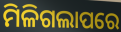
ମିଳିଗଲାପରେ